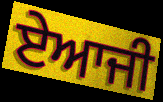
ਏਆਜੀ